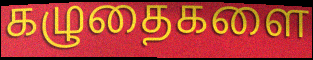
கழுதைகளை